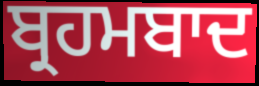
ਬ੍ਰਹਮਬਾਦ